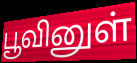
பூவினுள்